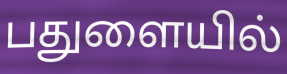
பதுளையில்